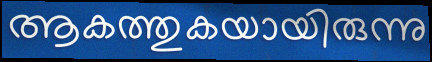
ആകത്തുകയായിരുന്നു